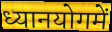
ध्यानयोगमें